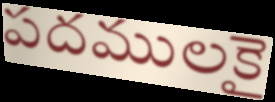
పదములకై